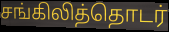
சங்கிலித்தொடர்